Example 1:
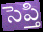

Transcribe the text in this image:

సెప్తి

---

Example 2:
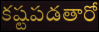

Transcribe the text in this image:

కష్టపడతారో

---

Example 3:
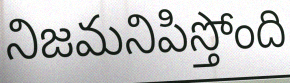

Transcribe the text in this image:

నిజమనిపిస్తోంది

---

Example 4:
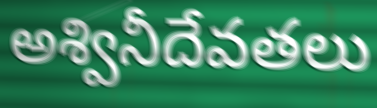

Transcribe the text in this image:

అశ్వినీదేవతలు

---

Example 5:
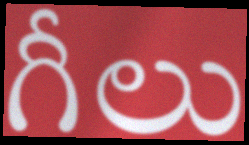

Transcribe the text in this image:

గీలు